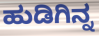
ಹುಡಿಗಿನ್ನ